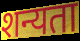
शन्यता